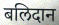
बलिदान